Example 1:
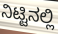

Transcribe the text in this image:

ನಿಟ್ಟಿನಲ್ಲಿ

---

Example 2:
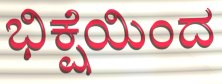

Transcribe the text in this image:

ಭಿಕ್ಷೆಯಿಂದ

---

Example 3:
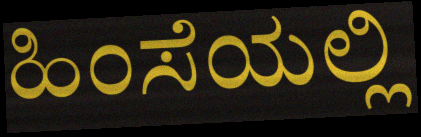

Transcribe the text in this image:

ಹಿಂಸೆಯಲ್ಲಿ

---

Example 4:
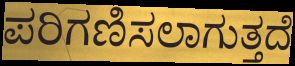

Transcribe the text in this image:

ಪರಿಗಣಿಸಲಾಗುತ್ತದೆ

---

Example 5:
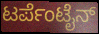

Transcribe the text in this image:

ಟರ್ಪೆಂಟೈನ್